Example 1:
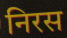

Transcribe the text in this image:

निरस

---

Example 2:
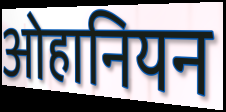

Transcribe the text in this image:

ओहानियन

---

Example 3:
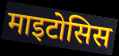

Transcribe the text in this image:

माइटोसिस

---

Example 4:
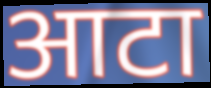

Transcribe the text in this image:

आटा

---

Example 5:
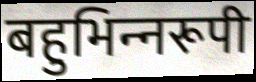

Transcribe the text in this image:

बहुभिन्नरूपी